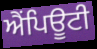
ਐਂਪਿਊਟੀ